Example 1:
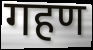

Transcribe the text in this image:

गहण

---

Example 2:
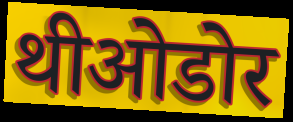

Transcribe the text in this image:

थीओडोर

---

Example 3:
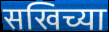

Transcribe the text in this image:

सखिच्या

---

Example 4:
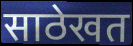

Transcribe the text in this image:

साठेखत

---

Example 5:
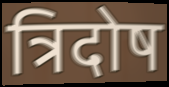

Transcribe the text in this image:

त्रिदोष